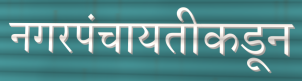
नगरपंचायतीकडून